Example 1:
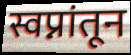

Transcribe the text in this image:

स्वप्नांतून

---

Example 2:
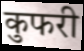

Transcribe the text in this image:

कुफरी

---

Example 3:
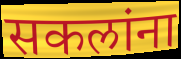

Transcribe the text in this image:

सकलांना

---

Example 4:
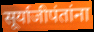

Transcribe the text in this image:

सूर्याजीपंतांना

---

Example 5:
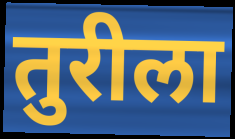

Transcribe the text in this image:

तुरीला